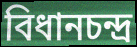
বিধানচন্দ্র